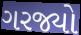
ગરજ્યો